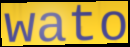
wato